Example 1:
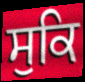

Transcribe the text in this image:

ਸੁਕਿ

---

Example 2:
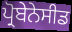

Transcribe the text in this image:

ਪ੍ਰੋਬੇਨੇਸੀਡ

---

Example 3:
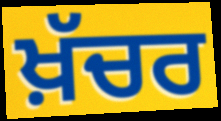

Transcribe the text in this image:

ਖ਼ੱਚਰ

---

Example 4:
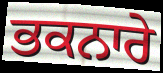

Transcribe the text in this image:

ਭਕਨਾਰੇ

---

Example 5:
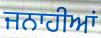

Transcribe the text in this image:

ਜਨਾਹੀਆਂ